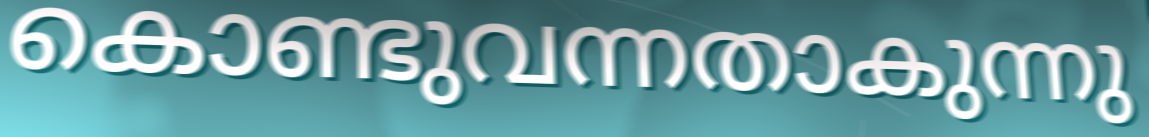
കൊണ്ടുവന്നതാകുന്നു